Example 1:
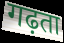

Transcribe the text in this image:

गढ़ता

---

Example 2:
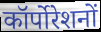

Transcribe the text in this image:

कॉर्पोरेशनों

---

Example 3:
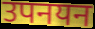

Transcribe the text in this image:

उपनयन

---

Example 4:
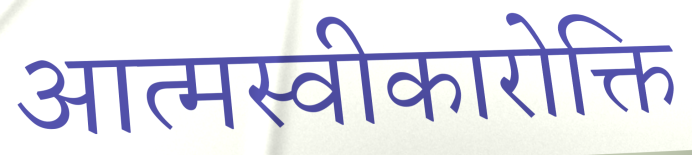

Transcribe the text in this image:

आत्मस्वीकारोक्ति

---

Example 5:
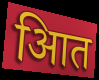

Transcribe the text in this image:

आित